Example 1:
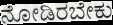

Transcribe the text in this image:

ನೋಡಿರಬೇಕು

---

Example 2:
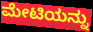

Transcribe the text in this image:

ಮೇಟಿಯನ್ನು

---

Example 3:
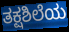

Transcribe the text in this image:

ತಕ್ಷಶಿಲೆಯ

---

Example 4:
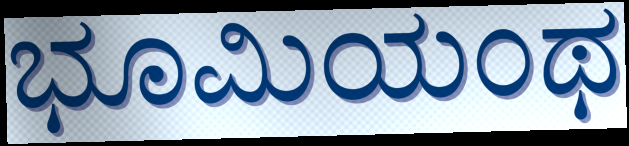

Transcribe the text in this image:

ಭೂಮಿಯಂಥ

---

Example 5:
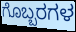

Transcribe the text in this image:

ಗೊಬ್ಬರಗಳ